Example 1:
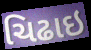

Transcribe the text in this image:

ચિઢાઇ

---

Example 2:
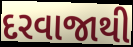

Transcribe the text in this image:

દરવાજાથી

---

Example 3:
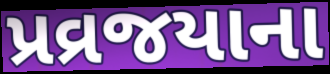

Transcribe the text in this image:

પ્રવ્રજયાના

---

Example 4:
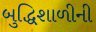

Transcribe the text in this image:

બુદ્ધિશાળીની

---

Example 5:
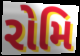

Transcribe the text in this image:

રોમિ